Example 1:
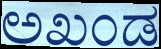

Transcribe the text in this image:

ಅಖಂಡ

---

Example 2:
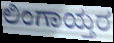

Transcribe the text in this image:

ಲಿಂಗಾಯ್ತರ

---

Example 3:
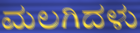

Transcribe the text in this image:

ಮಲಗಿದಳು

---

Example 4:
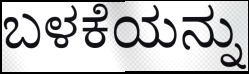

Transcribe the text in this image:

ಬಳಕೆಯನ್ನು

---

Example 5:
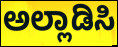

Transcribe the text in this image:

ಅಲ್ಲಾಡಿಸಿ